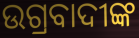
ଉଗ୍ରବାଦୀଙ୍କ